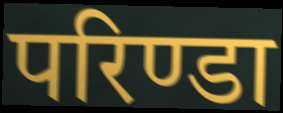
परिण्डा